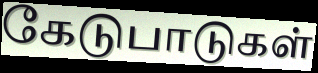
கேடுபாடுகள்